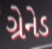
ગ્રેનેડ